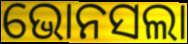
ଭୋନସଲା